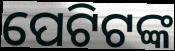
ପେଟିଟଙ୍କ